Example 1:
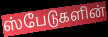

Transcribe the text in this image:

ஸ்பேடுகளின்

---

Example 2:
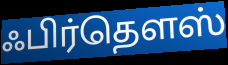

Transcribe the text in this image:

ஃபிர்தௌஸ்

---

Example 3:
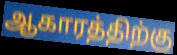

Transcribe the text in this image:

ஆகாரத்திற்கு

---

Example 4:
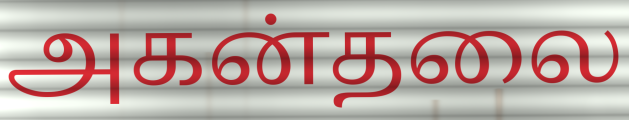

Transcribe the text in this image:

அகன்தலை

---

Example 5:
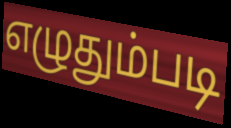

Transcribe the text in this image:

எழுதும்படி